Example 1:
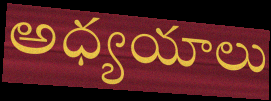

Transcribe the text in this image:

అధ్యయాలు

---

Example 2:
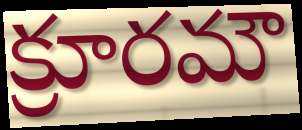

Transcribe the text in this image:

క్రూరమౌ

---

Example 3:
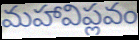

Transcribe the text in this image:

మహావిప్లవం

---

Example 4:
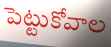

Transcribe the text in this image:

పెట్టుకోవాల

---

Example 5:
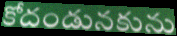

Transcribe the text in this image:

కోదండునకును